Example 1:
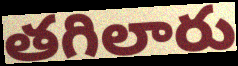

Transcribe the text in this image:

తగిలారు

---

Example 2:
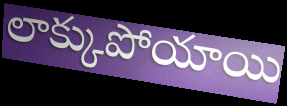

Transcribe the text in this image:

లాక్కుపోయాయి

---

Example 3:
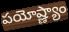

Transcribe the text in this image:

పయోష్ణ్యాం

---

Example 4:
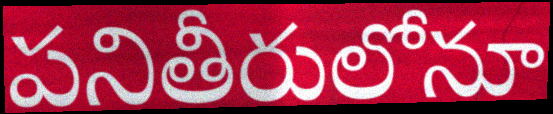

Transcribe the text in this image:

పనితీరులోనూ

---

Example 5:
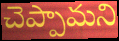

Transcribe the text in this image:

చెప్పామని